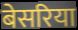
बेसरिया